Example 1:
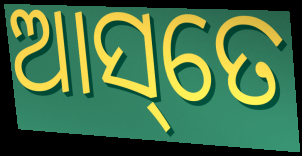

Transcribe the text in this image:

ଆସ୍‌ତେ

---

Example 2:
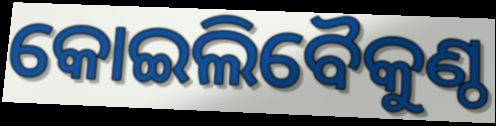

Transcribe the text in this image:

କୋଇଲିବୈକୁଣ୍ଠ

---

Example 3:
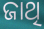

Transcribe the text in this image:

ଜାଥି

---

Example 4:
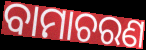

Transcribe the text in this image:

ବାମାଚରଣ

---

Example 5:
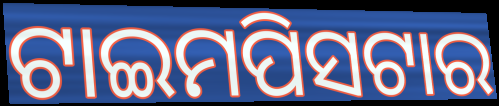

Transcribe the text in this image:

ଟାଇମପିସଟାର